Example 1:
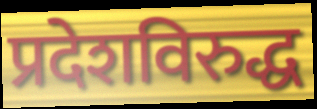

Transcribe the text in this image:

प्रदेशविरुद्ध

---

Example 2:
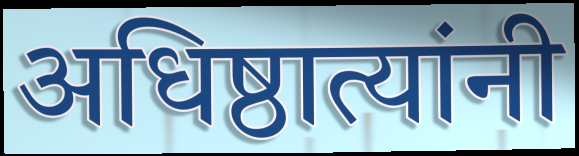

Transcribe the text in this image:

अधिष्ठात्यांनी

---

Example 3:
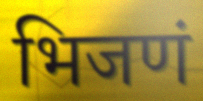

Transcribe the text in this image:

भिजणं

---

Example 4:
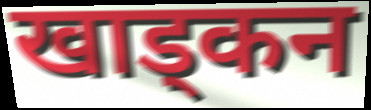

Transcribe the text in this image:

खाड्कन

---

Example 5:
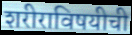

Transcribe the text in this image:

शरीराविषयीची